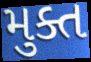
મુક્ત